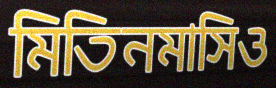
মিতিনমাসিও